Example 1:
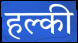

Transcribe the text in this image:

हल्‍की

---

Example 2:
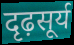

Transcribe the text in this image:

दृढ़सूर्य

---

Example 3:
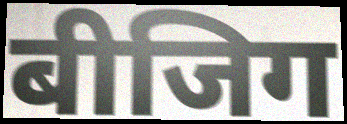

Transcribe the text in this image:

बीजिग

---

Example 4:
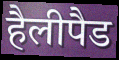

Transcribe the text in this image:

हैलीपैड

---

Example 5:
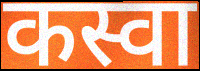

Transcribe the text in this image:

कस्वा